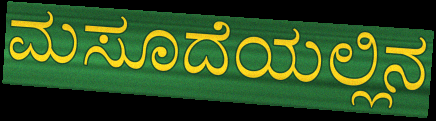
ಮಸೂದೆಯಲ್ಲಿನ